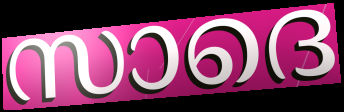
സാദെ